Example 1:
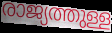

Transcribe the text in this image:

രാജ്യത്തുള്ള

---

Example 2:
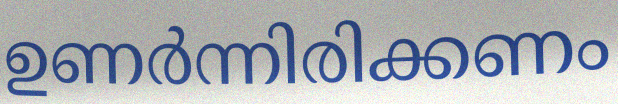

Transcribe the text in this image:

ഉണർന്നിരിക്കണം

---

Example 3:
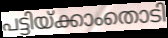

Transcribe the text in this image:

പട്ടിയ്ക്കാംതൊടി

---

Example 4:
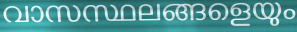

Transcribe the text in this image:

വാസസ്ഥലങ്ങളെയും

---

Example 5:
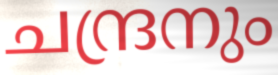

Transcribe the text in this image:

ചന്ദ്രനും